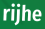
rijhe